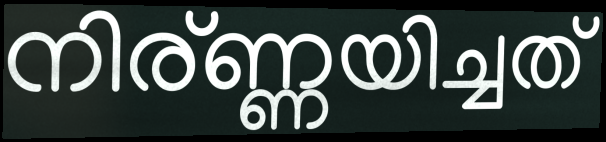
നിര്ണ്ണയിച്ചത്